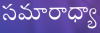
సమారాధ్యా